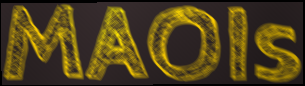
MAOIs